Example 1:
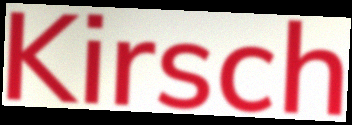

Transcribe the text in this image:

Kirsch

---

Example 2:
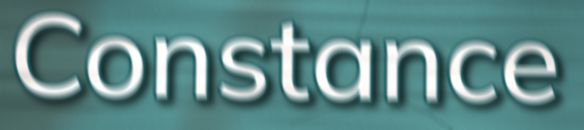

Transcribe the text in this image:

Constance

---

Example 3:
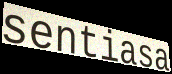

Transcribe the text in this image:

sentiasa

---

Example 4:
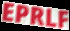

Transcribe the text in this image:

EPRLF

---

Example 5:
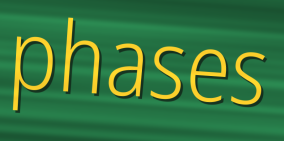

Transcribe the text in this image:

phases